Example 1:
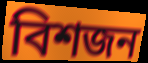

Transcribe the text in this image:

বিশজন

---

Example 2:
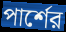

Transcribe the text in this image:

পার্শের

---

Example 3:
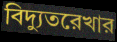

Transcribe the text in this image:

বিদ্যুতরেখার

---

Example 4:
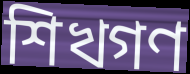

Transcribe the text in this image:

শিখগণ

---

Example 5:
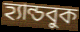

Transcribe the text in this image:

হ্যান্ডবুক